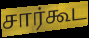
சார்கூட